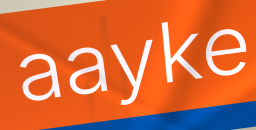
aayke